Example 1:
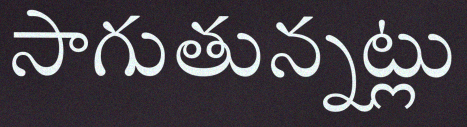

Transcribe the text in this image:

సాగుతున్నట్లు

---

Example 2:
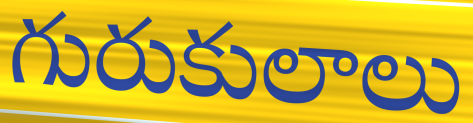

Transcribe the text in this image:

గురుకులాలు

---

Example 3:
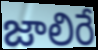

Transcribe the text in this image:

జాలిరే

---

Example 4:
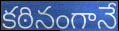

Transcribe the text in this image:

కఠినంగానే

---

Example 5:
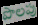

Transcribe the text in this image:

పొలపు